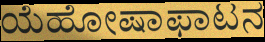
ಯೆಹೋಷಾಫಾಟನ